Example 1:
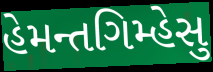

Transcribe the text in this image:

હેમન્તગિમ્હેસુ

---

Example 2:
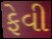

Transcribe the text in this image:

ફેવી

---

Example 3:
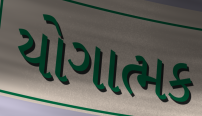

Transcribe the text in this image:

યોગાત્મક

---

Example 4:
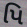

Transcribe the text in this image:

પિ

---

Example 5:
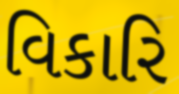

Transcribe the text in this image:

વિકારિ